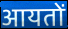
आयतों